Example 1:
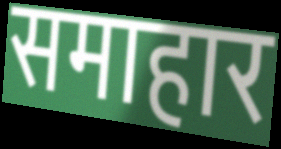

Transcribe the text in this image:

समाहार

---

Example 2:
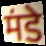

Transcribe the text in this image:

मंडे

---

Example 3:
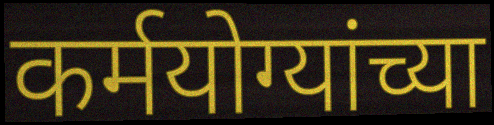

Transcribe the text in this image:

कर्मयोग्यांच्या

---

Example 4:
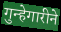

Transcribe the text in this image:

गुन्हेगारीने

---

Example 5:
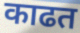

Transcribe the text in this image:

काढत